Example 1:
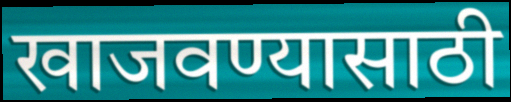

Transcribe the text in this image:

खाजवण्यासाठी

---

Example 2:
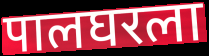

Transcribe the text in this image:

पालघरला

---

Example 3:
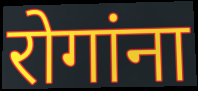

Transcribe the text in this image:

रोगांना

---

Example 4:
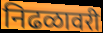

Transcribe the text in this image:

निढळावरी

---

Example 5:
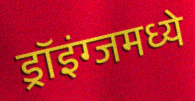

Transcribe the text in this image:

ड्रॉइंग्जमध्ये